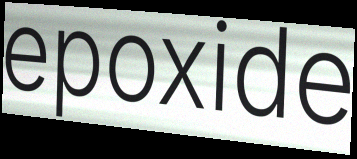
epoxide